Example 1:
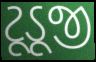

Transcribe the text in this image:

ટૂડૂજી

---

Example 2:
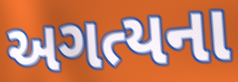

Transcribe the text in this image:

અગત્યના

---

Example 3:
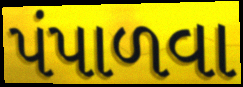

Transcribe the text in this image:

પંપાળવા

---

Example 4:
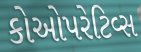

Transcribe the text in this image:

કોઓપરેટિવ્સ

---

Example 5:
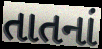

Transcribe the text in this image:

તાતનાં